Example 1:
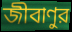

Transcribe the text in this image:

জীবাণুর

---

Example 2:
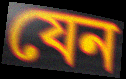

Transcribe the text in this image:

যেন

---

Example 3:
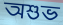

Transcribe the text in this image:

অশুভ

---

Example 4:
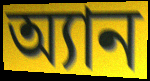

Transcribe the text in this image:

অ্যান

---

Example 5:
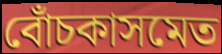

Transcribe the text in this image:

বোঁচকাসমেত